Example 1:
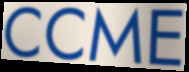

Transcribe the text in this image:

CCME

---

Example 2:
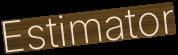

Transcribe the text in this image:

Estimator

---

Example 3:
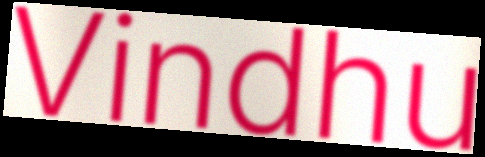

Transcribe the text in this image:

Vindhu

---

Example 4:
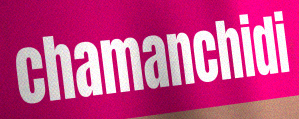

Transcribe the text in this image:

chamanchidi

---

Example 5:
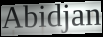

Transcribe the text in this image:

Abidjan